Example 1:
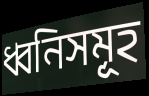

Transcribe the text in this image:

ধ্বনিসমূহ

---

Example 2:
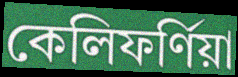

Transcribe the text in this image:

কেলিফৰ্ণিয়া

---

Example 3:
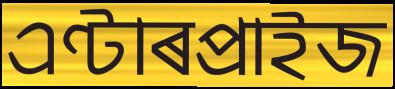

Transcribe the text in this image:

এণ্টাৰপ্ৰাইজ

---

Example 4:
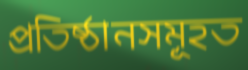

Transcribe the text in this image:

প্ৰতিষ্ঠানসমূহত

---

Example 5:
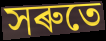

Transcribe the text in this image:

সৰুতে